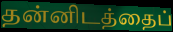
தன்னிடத்தைப்